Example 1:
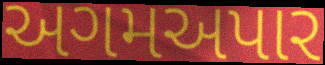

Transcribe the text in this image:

અગમઅપાર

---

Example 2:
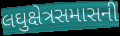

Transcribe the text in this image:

લઘુક્ષેત્રસમાસની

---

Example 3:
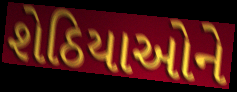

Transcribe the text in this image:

શેઠિયાઓને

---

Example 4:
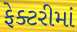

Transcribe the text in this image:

ફેક્ટરીમાં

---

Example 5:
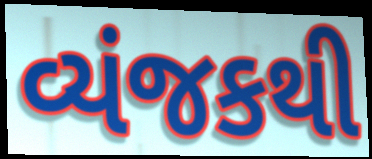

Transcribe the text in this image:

વ્યંજકથી